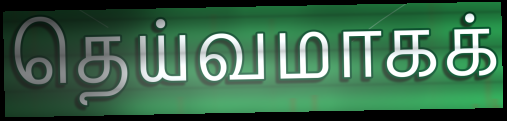
தெய்வமாகக்